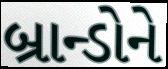
બ્રાન્ડોને